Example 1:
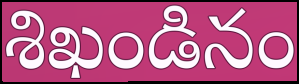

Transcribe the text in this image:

శిఖండినం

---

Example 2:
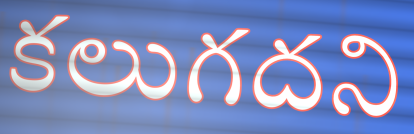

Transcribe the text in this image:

కలుగదని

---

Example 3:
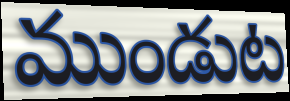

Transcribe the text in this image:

ముండుట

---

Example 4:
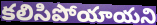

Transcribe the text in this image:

కలిసిపోయాయని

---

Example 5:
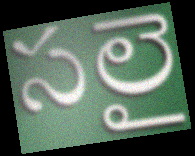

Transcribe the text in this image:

సలై